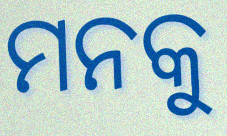
ମନକୁ